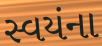
સ્વયંના